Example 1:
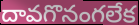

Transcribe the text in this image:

దావగొనంగలేక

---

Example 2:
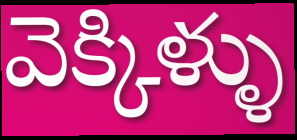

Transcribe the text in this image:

వెక్కిళ్ళు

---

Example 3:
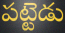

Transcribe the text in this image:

పట్టెడు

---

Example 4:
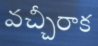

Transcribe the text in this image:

వచ్చీరాక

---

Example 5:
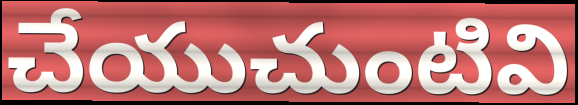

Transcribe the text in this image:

చేయుచుంటివి